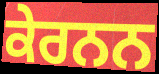
ਕੇਰਨਨ